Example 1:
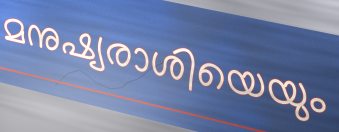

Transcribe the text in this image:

മനുഷ്യരാശിയെയും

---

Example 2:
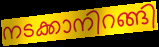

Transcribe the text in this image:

നടക്കാനിറങ്ങി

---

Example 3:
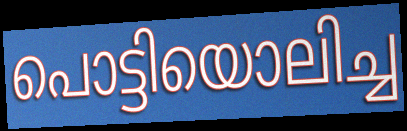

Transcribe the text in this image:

പൊട്ടിയൊലിച്ച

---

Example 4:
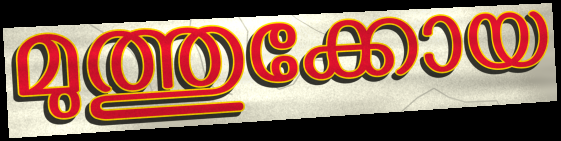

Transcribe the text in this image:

മുത്തുക്കോയ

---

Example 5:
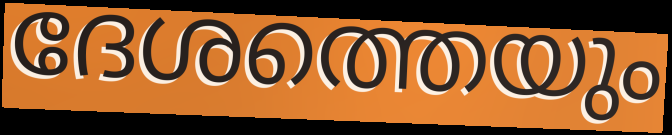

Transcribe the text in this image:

ദേശത്തെയും